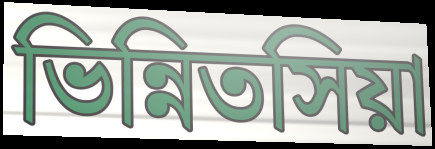
ভিন্নিতসিয়া